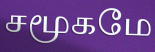
சமூகமே